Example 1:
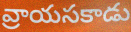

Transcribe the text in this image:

వ్రాయసకాడు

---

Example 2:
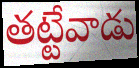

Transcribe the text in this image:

తట్టేవాడు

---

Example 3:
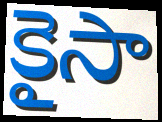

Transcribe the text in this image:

కైసా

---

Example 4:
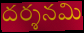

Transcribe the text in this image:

దర్శనమి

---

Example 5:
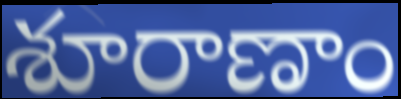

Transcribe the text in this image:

శూరాణాం